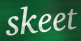
skeet